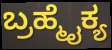
ಬ್ರಹ್ಮೈಕ್ಯ